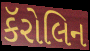
કૅરોલિન